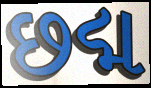
છદ્મ